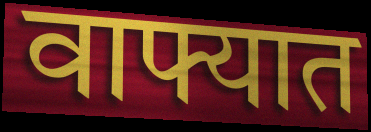
वाफ्यात